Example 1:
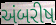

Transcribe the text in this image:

અંબરીષ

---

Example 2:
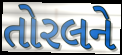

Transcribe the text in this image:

તોરલને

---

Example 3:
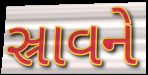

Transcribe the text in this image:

સ્રાવને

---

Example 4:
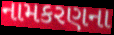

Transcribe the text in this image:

નામકરણના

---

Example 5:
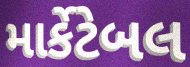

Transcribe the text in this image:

માર્કેટેબલ